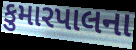
કુમારપાલના